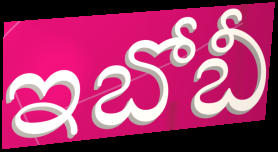
ఇబోబీ